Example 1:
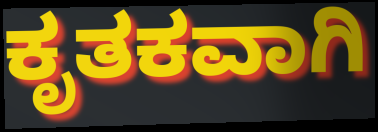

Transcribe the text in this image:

ಕೃತಕವಾಗಿ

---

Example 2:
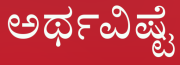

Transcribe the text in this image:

ಅರ್ಥವಿಷ್ಟೆ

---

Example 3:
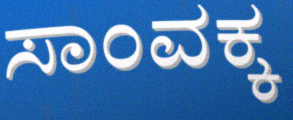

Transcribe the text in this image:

ಸಾಂವಕ್ಕ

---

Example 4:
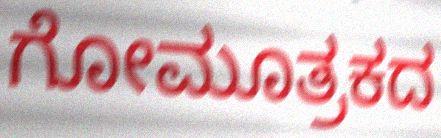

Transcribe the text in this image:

ಗೋಮೂತ್ರಕದ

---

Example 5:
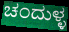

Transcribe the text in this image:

ಚಂದುಳ್ಳ